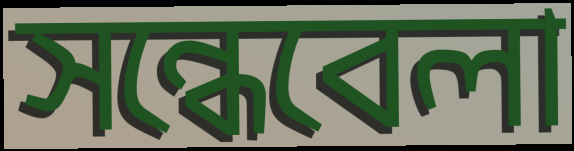
সন্ধেবেলা